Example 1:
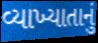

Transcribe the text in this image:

વ્યાખ્યાતાનું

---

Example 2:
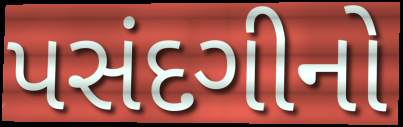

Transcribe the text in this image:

પસંદગીનો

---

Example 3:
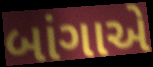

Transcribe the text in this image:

બાંગાએ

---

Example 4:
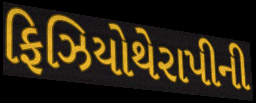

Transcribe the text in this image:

ફિઝિયોથેરાપીની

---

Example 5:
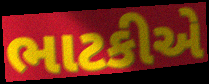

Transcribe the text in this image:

ભાટકીએ